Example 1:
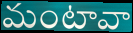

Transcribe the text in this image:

మంటావా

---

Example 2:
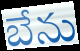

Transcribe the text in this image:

బేను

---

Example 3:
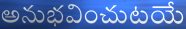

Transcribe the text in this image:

అనుభవించుటయే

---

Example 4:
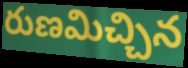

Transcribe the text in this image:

రుణమిచ్చిన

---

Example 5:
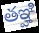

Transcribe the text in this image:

తఞ్హి